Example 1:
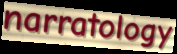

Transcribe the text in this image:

narratology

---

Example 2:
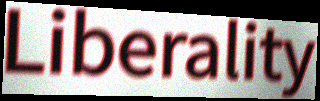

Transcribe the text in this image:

Liberality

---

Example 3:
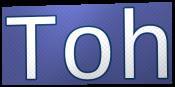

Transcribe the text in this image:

Toh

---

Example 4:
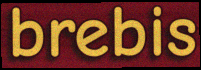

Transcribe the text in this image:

brebis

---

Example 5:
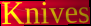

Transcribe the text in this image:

Knives